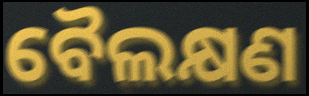
ବୈଲକ୍ଷଣ